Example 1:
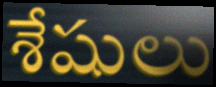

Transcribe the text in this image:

శేషులు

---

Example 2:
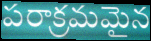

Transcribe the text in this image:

పరాక్రమమైన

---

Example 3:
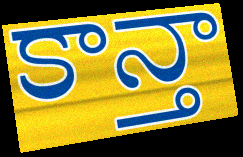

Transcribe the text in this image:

కాన్తా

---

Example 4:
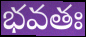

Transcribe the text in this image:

భవతః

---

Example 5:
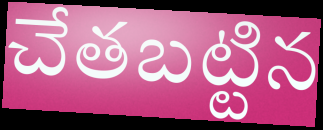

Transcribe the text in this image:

చేతబట్టిన